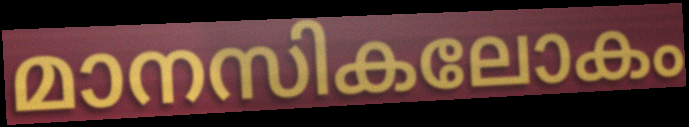
മാനസികലോകം